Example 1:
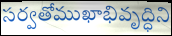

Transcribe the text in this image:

సర్వతోముఖాభివృద్ధిని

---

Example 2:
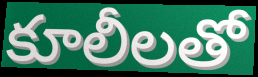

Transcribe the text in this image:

కూలీలతో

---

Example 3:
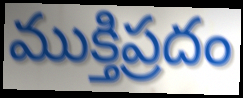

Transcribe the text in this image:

ముక్తిప్రదం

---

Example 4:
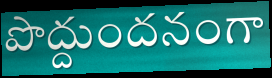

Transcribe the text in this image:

పొద్దుందనంగా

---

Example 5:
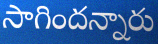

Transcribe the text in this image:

సాగిందన్నారు